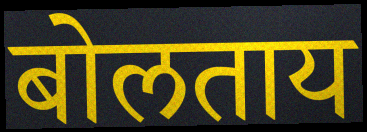
बोलताय